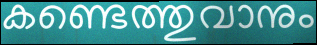
കണ്ടെത്തുവാനും